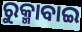
ରୁକ୍ମାବାଇ